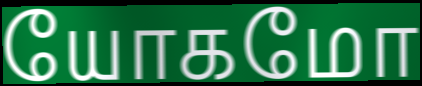
யோகமோ